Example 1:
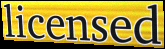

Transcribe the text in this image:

licensed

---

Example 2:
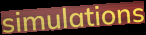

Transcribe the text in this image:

simulations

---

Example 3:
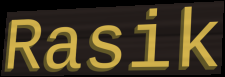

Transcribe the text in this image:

Rasik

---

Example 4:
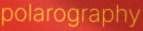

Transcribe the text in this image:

polarography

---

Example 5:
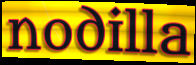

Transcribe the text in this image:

nodilla